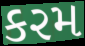
કરમ